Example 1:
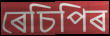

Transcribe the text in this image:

ৰেচিপিৰ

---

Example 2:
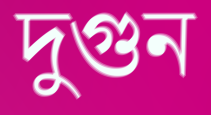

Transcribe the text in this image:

দুগুন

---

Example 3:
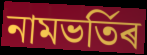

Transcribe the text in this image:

নামভৰ্তিৰ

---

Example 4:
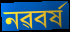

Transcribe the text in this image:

নৱবৰ্ষ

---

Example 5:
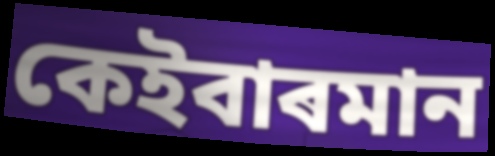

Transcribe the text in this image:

কেইবাৰমান